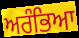
ਅਰੰਭਿਆ